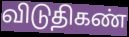
விடுதிகண்